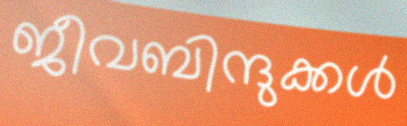
ജീവബിന്ദുക്കൾ